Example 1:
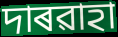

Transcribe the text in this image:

দাৰৱাহা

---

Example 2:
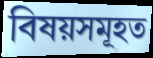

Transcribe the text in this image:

বিষয়সমূহত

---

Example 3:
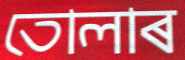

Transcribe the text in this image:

তোলাৰ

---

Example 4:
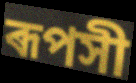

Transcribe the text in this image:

ৰূপসী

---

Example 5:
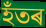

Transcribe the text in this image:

হঁতৰ